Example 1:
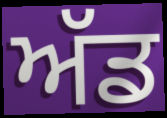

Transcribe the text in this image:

ਅੱਡ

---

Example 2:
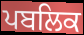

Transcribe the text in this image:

ਪਬਲਿਕ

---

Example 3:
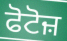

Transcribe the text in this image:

ਫੋਟੋਜ਼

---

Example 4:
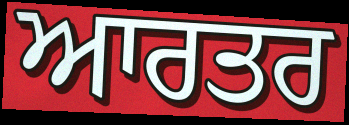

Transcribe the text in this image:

ਆਰਤਰ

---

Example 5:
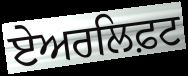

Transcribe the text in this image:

ਏਅਰਲਿਫ਼ਟ